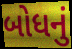
બોધનું